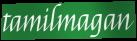
tamilmagan